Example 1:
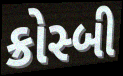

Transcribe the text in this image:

ક્રોસ્બી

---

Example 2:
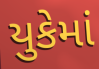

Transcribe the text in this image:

યુકેમાં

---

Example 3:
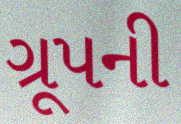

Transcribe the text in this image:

ગ્રૂપની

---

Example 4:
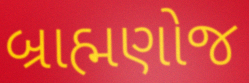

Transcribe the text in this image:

બ્રાહ્મણોજ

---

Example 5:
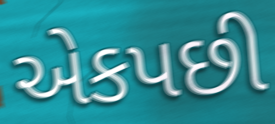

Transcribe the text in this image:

એકપછી